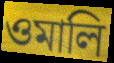
ওমালি